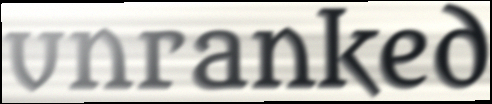
unranked